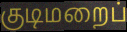
குடிமறைப்